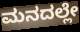
ಮನದಲ್ಲೇ